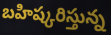
బహిష్కరిస్తున్న